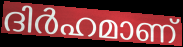
ദിർഹമാണ്